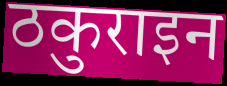
ठकुराइन